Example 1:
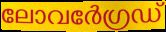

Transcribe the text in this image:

ലോവർേഗ്രഡ്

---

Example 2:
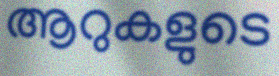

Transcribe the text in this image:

ആറുകളുടെ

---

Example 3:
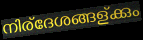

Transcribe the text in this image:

നിര്ദേശങ്ങള്ക്കും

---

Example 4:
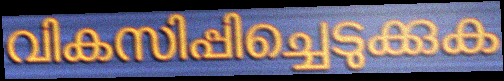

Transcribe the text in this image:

വികസിപ്പിച്ചെടുക്കുക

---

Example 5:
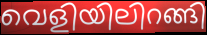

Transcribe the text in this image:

വെളിയിലിറങ്ങി